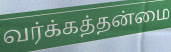
வர்க்கத்தன்மை